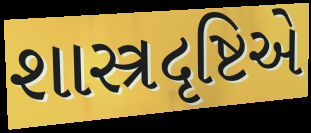
શાસ્ત્રદૃષ્ટિએ